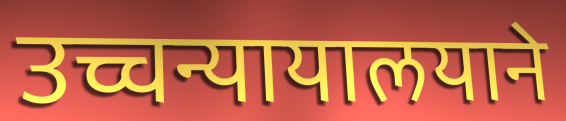
उच्चन्यायालयाने